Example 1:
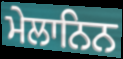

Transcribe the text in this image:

ਮੇਲਾਨਿਨ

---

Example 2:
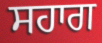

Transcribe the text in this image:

ਸਹਾਗ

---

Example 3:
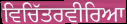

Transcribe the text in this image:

ਵਿਚਿੱਤਰਵੀਰਿਆ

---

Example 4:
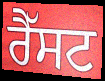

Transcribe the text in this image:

ਰੈੱਸਟ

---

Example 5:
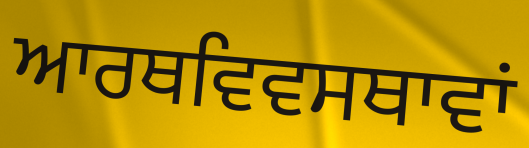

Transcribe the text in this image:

ਆਰਥਵਿਵਸਥਾਵਾਂ